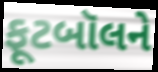
ફૂટબૉલને